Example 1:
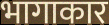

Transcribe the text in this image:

भागाकार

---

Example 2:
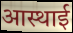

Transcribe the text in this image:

आस्थाई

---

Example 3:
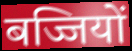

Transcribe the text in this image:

बज्जियों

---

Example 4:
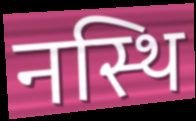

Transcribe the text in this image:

नस्थि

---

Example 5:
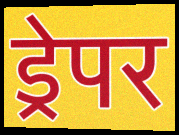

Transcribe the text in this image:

ड्रेपर